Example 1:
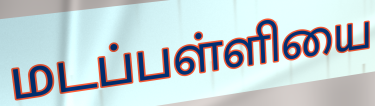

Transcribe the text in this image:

மடப்பள்ளியை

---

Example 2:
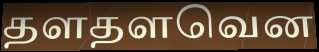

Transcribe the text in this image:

தளதளவென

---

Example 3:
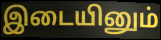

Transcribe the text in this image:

இடையினும்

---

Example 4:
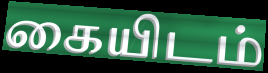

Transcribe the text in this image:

கையிடம்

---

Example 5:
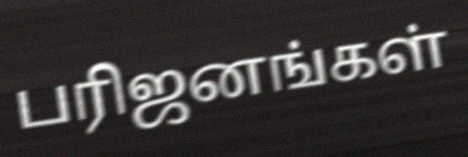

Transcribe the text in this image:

பரிஜனங்கள்